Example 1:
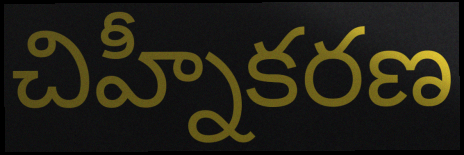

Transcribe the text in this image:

చిహ్నీకరణ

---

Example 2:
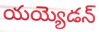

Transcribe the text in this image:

యయ్యెడన్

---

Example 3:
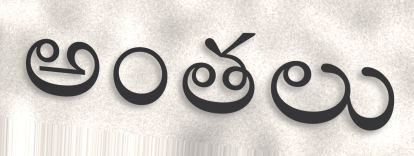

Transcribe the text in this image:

అంతలు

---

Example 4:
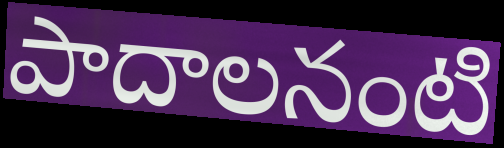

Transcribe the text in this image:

పాదాలనంటి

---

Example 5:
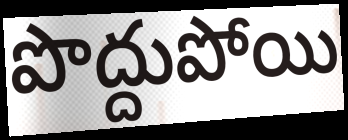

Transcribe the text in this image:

పొద్దుపోయి